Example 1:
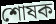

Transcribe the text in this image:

শোষক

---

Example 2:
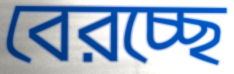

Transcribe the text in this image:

বেরচ্ছে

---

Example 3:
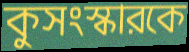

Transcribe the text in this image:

কুসংস্কারকে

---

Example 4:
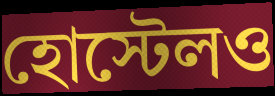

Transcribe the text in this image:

হোস্টেলও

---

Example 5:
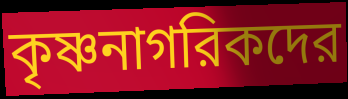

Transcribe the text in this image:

কৃষ্ণনাগরিকদের